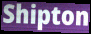
Shipton